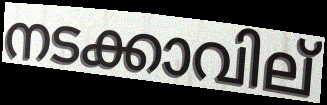
നടക്കാവില്